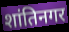
शांतिनगर